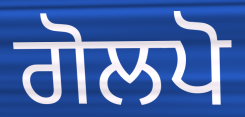
ਗੋਲਪੋ